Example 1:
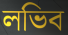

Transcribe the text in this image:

লভিব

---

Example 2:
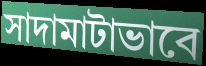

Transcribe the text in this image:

সাদামাটাভাবে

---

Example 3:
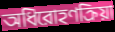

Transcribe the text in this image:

অধিরোহণক্রিয়া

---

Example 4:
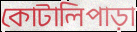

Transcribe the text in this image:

কোটালিপাড়া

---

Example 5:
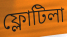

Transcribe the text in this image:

ফ্লোটিলা